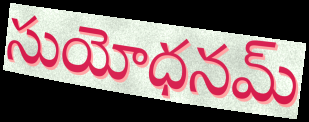
సుయోధనమ్